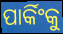
ପାର୍କିଂକୁ